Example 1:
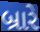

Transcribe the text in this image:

બ્રારે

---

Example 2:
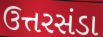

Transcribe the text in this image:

ઉત્તરસંડા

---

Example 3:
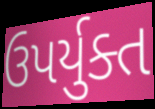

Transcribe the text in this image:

ઉપર્યુક્ત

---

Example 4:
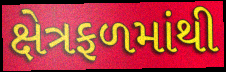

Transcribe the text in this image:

ક્ષેત્રફળમાંથી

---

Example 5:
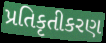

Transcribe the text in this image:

પ્રતિકૃતીકરણ